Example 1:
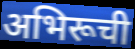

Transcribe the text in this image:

अभिरूची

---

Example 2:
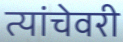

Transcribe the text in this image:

त्यांचेवरी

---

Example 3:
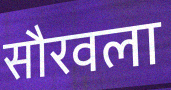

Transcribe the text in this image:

सौरवला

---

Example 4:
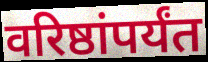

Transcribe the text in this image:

वरिष्ठांपर्यंत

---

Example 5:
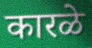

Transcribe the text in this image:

कारळे